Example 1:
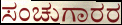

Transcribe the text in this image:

ಸಂಚುಗಾರರ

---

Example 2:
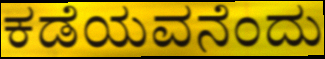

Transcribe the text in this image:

ಕಡೆಯವನೆಂದು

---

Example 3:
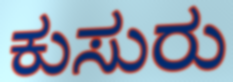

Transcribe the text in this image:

ಕುಸುರು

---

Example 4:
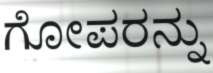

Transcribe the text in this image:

ಗೋಪರನ್ನು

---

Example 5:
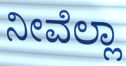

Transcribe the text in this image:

ನೀವೆಲ್ಲಾ